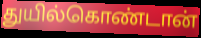
துயில்கொண்டான்